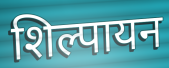
शिल्पायन